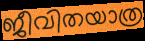
ജീവിതയാത്ര